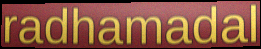
radhamadal